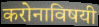
करोनाविषयी